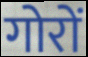
गोरों